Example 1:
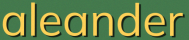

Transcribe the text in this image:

aleander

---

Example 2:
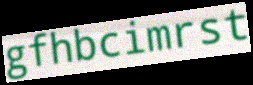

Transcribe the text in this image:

gfhbcimrst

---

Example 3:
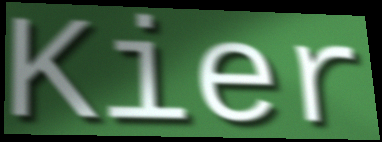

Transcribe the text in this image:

Kier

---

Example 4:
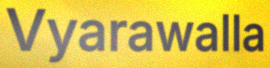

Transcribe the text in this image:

Vyarawalla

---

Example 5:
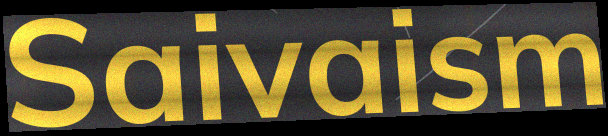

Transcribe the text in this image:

Saivaism